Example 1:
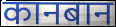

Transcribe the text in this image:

कानबान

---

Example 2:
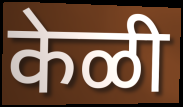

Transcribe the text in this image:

केळी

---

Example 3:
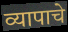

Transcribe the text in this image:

व्यापाचे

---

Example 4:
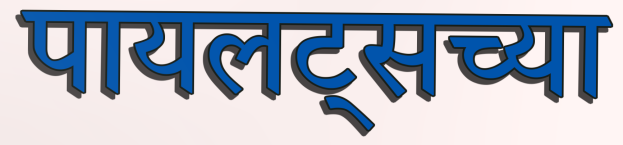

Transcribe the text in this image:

पायलट्सच्या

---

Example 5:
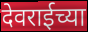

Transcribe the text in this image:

देवराईच्या